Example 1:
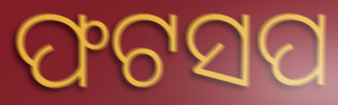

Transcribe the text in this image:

ଫଟସପ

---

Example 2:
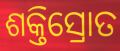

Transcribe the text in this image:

ଶକ୍ତିସ୍ରୋତ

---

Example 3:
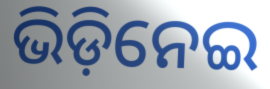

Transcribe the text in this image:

ଭିଡ଼ିନେଇ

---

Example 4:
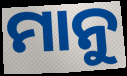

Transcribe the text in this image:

ମାନୁ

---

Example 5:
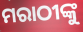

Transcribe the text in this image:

ମରାଠୀଙ୍କୁ